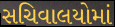
સચિવાલયોમાં